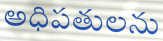
అధిపతులను